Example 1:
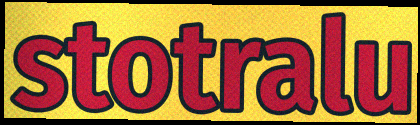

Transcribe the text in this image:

stotralu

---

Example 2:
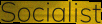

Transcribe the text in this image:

Socialist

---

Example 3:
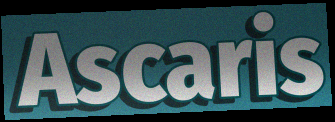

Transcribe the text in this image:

Ascaris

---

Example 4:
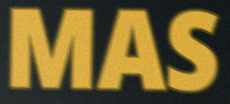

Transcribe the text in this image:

MAS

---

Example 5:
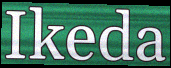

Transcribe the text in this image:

Ikeda